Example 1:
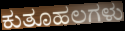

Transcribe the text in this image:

ಕುತೂಹಲಗಳು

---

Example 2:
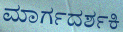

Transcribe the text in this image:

ಮಾರ್ಗದರ್ಶಕಿ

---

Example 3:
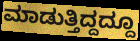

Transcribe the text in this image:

ಮಾಡುತ್ತಿದ್ದದ್ದೂ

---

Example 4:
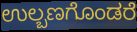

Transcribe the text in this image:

ಉಲ್ಬಣಗೊಂಡರೆ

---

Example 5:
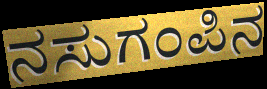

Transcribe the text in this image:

ನಸುಗಂಪಿನ